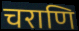
चराणि